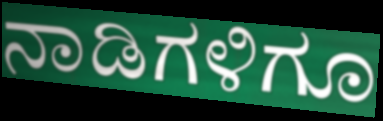
ನಾಡಿಗಳಿಗೂ